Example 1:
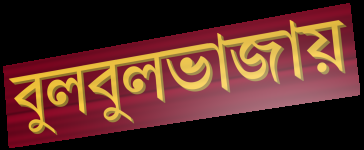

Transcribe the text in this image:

বুলবুলভাজায়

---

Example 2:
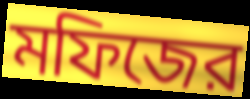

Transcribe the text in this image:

মফিজের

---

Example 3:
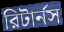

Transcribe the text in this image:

রিটার্নস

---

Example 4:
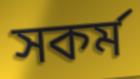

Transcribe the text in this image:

সকর্ম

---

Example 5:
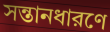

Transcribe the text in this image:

সন্তানধারণে